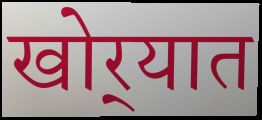
खोर्यात